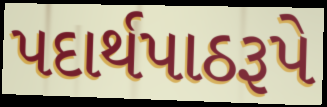
પદાર્થપાઠરૂપે